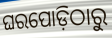
ଘରପୋଡ଼ିଠାରୁ